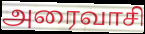
அரைவாசி